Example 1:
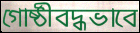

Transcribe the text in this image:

গোষ্ঠীবদ্ধভাবে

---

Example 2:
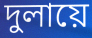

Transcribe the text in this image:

দুলায়ে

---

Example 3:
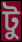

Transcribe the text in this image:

টু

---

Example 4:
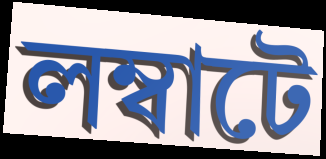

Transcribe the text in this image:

লম্বাটে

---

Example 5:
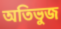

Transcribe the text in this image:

অতিভুজ